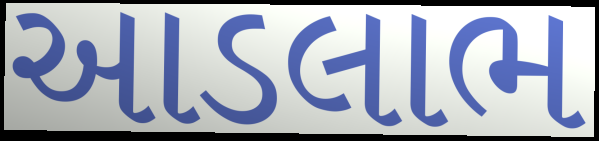
આડલાભ